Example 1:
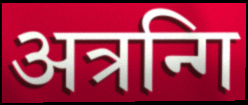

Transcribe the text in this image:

अत्रन्गि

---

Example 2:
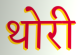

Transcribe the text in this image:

थोरी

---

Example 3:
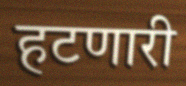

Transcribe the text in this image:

हटणारी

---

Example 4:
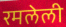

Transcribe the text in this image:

रमलेली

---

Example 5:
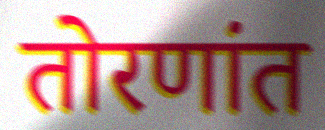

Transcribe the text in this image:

तोरणांत